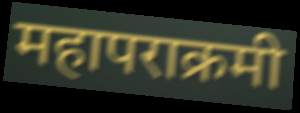
महापराक्रमी